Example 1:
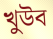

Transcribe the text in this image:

খুউব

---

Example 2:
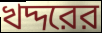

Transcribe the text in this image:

খদ্দরের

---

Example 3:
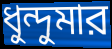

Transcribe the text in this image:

ধুন্দুমার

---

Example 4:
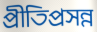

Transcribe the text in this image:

প্রীতিপ্রসন্ন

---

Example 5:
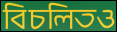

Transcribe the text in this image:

বিচলিতও